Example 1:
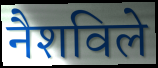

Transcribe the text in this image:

नैशविले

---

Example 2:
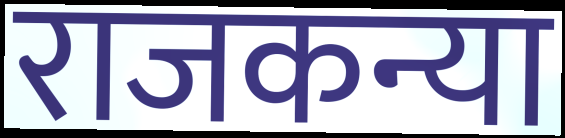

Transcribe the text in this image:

राजकन्या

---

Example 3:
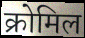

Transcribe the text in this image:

क्रोमिल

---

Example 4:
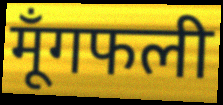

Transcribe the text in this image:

मूँगफली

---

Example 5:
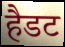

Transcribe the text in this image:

हैडट